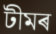
টীমৰ